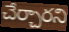
చేర్చారని